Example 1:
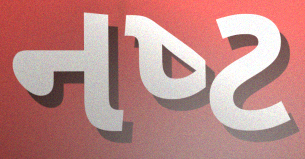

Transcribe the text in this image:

નષ્‍ટ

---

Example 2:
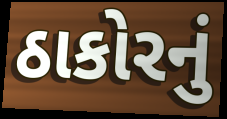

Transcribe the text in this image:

ઠાકોરનું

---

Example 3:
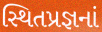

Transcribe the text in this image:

સ્થિતપ્રજ્ઞનાં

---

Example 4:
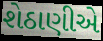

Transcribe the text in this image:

શેઠાણીએ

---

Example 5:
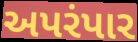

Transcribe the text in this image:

અપરંપાર